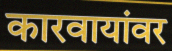
कारवायांवर